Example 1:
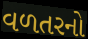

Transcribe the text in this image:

વળતરનો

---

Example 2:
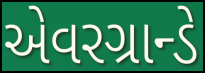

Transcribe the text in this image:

એવરગ્રાન્ડે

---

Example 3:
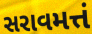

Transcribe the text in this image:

સરાવમત્તં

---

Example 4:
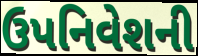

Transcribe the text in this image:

ઉપનિવેશની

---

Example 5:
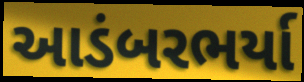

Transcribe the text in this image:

આડંબરભર્યા